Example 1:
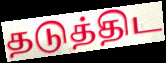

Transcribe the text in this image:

தடுத்திட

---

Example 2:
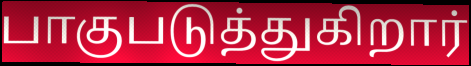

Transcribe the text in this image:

பாகுபடுத்துகிறார்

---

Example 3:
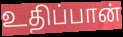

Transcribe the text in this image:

உதிப்பான்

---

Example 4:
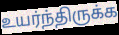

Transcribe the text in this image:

உயர்ந்திருக்க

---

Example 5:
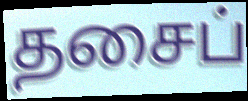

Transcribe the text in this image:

தசைப்